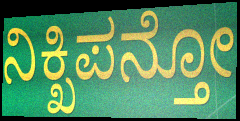
ನಿಕ್ಖಿಪನ್ತೋ